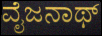
ವೈಜನಾಥ್